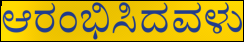
ಆರಂಭಿಸಿದವಳು